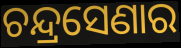
ଚନ୍ଦ୍ରସେଣାର